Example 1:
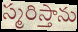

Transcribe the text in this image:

స్మరిస్తాను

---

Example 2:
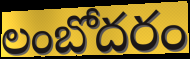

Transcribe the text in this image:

లంబోదరం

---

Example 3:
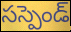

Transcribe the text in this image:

సస్పెండ్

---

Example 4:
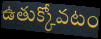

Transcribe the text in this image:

ఉతుక్కోవటం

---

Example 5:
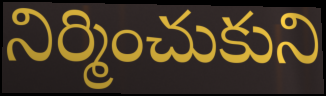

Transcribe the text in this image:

నిర్మించుకుని